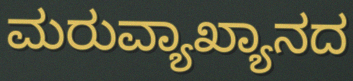
ಮರುವ್ಯಾಖ್ಯಾನದ